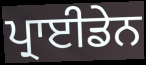
ਪ੍ਰਾਈਡੇਨ